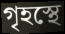
গৃহস্থে